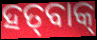
ହତ୍‌ବାକ୍